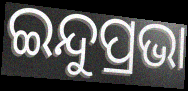
ଇନ୍ଦୁପ୍ରଭା